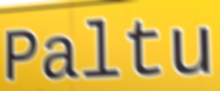
Paltu